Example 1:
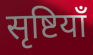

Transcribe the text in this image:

सृष्टियाँ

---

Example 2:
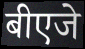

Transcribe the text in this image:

बीएजे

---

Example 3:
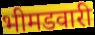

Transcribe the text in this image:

भीमडवारी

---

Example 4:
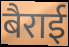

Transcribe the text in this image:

बैराई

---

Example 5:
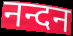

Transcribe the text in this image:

नन्‍दन